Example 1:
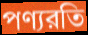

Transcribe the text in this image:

পণ্যরতি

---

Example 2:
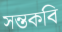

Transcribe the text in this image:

সন্তকবি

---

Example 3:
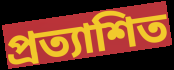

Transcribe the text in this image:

প্রত্যাশিত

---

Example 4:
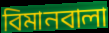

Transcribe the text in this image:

বিমানবালা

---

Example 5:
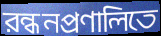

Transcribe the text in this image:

রন্ধনপ্রণালিতে